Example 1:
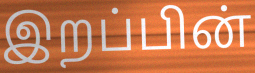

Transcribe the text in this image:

இறப்பின்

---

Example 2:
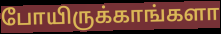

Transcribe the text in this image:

போயிருக்காங்களா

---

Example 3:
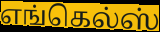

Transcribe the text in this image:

எங்கெல்ஸ்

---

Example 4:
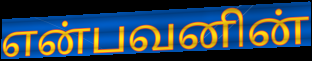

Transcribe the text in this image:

என்பவனின்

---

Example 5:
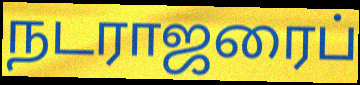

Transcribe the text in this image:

நடராஜரைப்